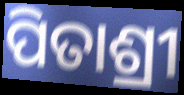
ପିତାଶ୍ରୀ